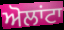
ਅੋਲਾਂਟਾ